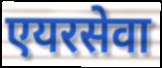
एयरसेवा